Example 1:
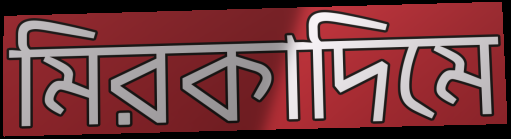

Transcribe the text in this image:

মিরকাদিমে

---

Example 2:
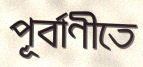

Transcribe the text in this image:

পূর্বাণীতে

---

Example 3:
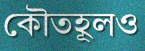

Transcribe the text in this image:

কৌতহূলও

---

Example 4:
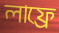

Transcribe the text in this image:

লাফ্রে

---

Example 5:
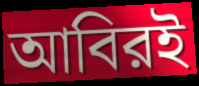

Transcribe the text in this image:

আবিরই